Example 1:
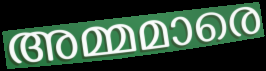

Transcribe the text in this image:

അമ്മമാരെ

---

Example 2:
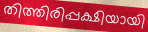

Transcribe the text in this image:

തിത്തിരിപ്പക്ഷിയായി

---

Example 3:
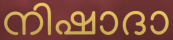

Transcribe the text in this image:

നിഷാദാ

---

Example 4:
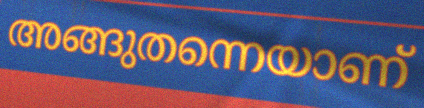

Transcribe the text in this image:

അങ്ങുതന്നെയാണ്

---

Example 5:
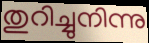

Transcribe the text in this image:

തുറിച്ചുനിന്നു